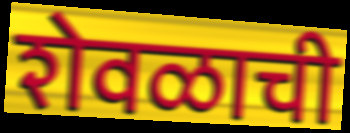
शेवळाची